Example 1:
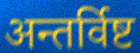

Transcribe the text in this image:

अन्तर्विष्ट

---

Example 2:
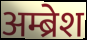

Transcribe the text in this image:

अम्ब्रेश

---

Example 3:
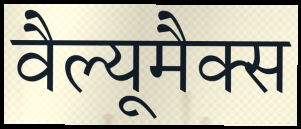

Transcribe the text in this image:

वैल्यूमैक्स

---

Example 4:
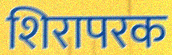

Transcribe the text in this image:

शिरापरक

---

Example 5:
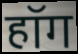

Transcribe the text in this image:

हॉग